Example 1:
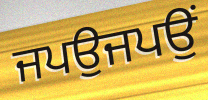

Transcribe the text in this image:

ਜਪਉਜਪਉਂ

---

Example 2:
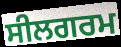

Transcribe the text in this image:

ਸੀਲਗਰਮ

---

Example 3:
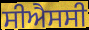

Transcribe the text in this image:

ਸੀਐਸਸੀ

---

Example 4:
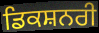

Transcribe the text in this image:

ਡਿਕਸ਼ਨਰੀ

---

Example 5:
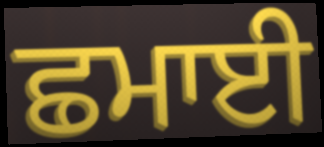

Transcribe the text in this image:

ਛਮਾਈ